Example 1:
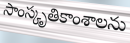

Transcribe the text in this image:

సాంస్కృతికాంశాలను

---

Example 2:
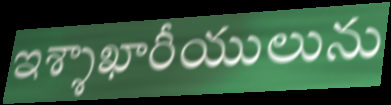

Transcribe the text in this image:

ఇశ్శాఖారీయులును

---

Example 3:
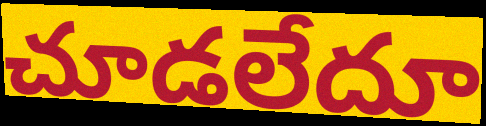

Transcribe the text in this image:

చూడలేదూ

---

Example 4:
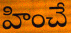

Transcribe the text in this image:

హించే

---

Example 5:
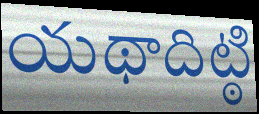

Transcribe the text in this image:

యథాదిట్ఠి